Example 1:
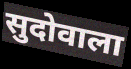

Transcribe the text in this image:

सुदोवाला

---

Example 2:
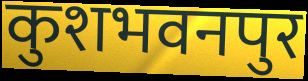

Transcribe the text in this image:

कुशभवनपुर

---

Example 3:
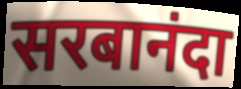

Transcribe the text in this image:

सरबानंदा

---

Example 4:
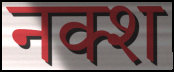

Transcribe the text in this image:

नक्श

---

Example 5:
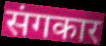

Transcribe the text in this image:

संगकार